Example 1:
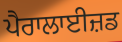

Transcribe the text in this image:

ਪੈਰਾਲਾਈਜ਼ਡ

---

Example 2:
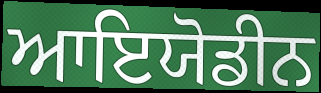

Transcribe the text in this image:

ਆਇਯੋਡੀਨ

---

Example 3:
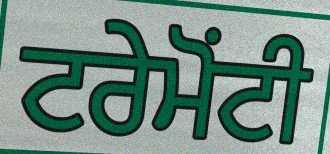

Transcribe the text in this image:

ਟਰੇਮੋਂਟੀ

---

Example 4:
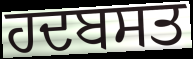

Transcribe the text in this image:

ਹਦਬਸਤ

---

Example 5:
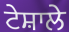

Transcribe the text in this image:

ਟੇਸ਼ਾਲੇ